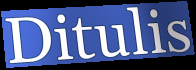
Ditulis